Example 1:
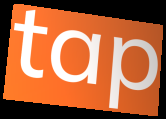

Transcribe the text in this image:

tap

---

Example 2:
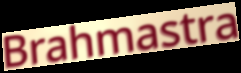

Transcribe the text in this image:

Brahmastra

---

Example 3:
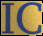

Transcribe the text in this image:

IC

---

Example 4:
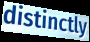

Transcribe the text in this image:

distinctly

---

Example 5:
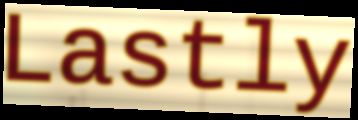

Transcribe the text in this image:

Lastly